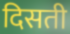
दिसती